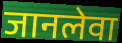
जानलेवा